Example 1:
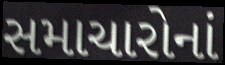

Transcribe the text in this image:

સમાચારોનાં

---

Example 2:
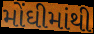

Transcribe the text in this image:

મોંઘીમાંથી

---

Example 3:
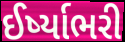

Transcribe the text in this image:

ઈર્ષ્યાભરી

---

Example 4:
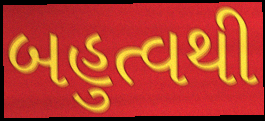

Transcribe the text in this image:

બહુત્વથી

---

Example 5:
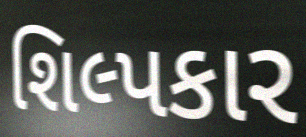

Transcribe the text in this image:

શિલ્પકાર